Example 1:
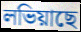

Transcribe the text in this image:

লভিয়াছে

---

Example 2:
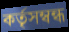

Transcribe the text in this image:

কর্তৃসম্বন্ধ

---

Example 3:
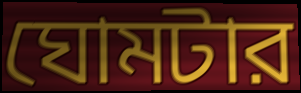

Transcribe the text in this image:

ঘোমটার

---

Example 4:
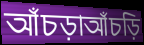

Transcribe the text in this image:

আঁচড়াআঁচড়ি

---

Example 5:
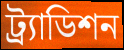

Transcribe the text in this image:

ট্র্যাডিশন